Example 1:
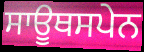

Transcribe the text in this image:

ਸਾਊਥਸਪੇਨ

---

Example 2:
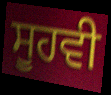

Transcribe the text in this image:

ਸੂਹਵੀ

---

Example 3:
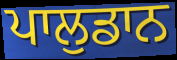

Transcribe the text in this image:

ਪਾਲੁਡਾਨ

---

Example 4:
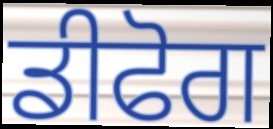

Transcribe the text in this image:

ਡੀਫੋਗ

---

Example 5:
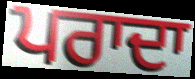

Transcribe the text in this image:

ਪਰਾਦਾ